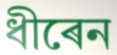
ধীৰেন